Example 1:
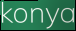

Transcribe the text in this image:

konya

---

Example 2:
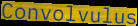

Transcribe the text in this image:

Convolvulus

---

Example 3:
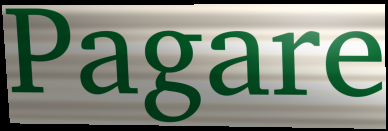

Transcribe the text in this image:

Pagare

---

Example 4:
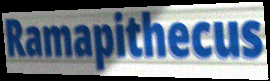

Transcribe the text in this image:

Ramapithecus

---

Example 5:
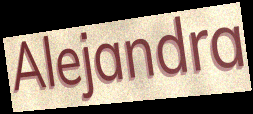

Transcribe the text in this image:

Alejandra